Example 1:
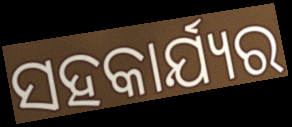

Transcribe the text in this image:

ସହକାର୍ଯ୍ୟର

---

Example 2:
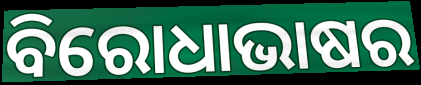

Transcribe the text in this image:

ବିରୋଧାଭାଷର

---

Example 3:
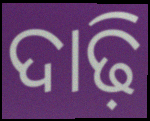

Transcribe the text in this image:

ଦାଢ଼ି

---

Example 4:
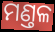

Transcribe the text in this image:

ମଣ୍ତଳ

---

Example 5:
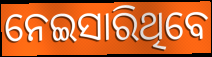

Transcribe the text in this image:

ନେଇସାରିଥିବେ